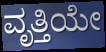
ವೃತ್ತಿಯೇ